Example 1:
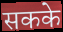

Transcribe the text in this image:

सकके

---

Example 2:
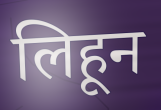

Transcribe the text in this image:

लिहून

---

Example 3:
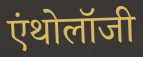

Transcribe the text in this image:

एंथोलॉजी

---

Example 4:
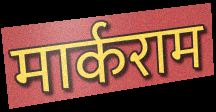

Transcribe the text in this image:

मार्कराम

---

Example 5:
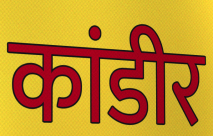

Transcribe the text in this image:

कांडीर